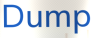
Dump